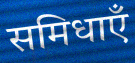
समिधाएँ